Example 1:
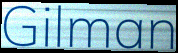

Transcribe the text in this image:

Gilman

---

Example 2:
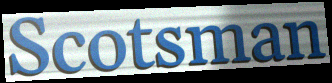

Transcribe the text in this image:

Scotsman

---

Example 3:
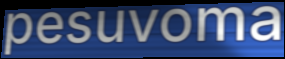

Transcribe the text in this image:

pesuvoma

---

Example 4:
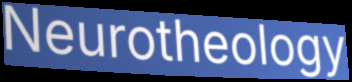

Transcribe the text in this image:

Neurotheology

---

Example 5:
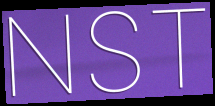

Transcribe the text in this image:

NST